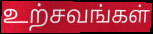
உற்சவங்கள்